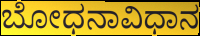
ಬೋಧನಾವಿಧಾನ